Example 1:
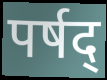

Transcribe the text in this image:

पर्षद्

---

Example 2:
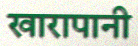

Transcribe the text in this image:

खारापानी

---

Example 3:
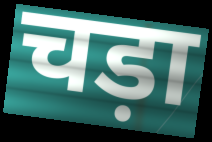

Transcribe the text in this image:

चड़ा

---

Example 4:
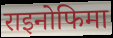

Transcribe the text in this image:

राइनोफिमा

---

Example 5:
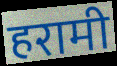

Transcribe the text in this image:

हरामी